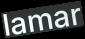
lamar